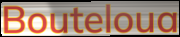
Bouteloua